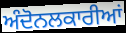
ਅੰਦੋਨਲਕਾਰੀਆਂ